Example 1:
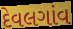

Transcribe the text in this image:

દેવલગાંવ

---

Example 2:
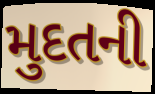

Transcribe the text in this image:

મુદતની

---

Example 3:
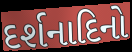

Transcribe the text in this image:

દર્શનાદિનો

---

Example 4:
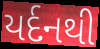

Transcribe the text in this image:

યર્દનથી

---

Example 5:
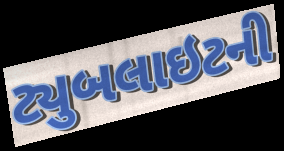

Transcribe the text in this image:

ટ્યુબલાઇટની